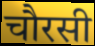
चौरसी